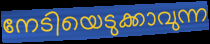
നേടിയെടുക്കാവുന്ന